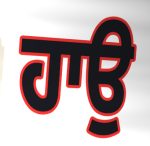
ਹਾਉ